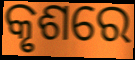
କୃଶରେ